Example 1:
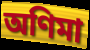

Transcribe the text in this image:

অণিমা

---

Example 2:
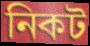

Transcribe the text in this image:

নিকট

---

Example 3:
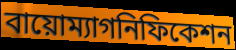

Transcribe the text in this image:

বায়োম্যাগনিফিকেশন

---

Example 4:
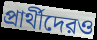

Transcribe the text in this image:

প্রার্থীদেরও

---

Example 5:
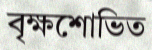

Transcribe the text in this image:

বৃক্ষশোভিত